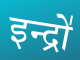
इन्द्रो॑